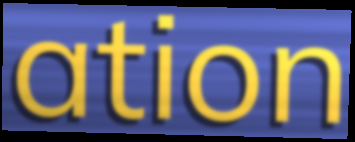
ation